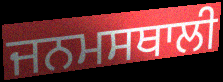
ਜਨਮਸਥਾਲੀ